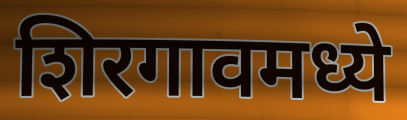
शिरगावमध्ये